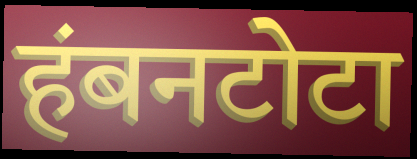
हंबनटोटा